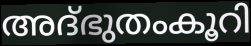
അദ്ഭുതംകൂറി